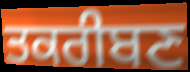
ਤਕਰੀਬਣ